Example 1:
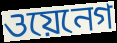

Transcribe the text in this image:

ওয়েনেগ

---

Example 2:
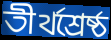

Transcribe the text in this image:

তীর্থশ্রেষ্ঠ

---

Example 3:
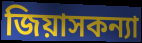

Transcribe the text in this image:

জিয়াসকন্যা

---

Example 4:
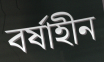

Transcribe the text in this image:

বর্ষাহীন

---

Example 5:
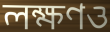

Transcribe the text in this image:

লক্ষণও